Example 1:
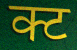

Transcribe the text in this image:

क्ट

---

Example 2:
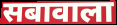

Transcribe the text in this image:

सबावाला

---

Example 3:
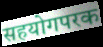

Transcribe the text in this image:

सहयोगपरक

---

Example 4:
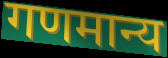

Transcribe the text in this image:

गणमान्‍य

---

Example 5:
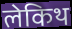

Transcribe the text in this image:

लेकिथ